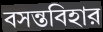
বসন্তবিহার